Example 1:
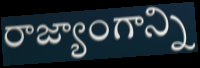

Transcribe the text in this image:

రాజ్యాంగాన్ని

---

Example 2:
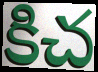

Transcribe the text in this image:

కిచ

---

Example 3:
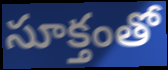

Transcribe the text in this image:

సూక్తంతో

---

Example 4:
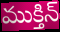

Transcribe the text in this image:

ముక్తిన్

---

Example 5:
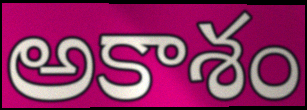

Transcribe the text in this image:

అకాశం